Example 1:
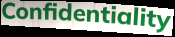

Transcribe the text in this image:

Confidentiality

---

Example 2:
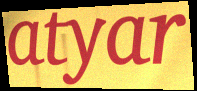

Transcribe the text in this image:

atyar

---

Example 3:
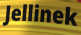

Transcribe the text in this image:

Jellinek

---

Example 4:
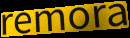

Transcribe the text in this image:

remora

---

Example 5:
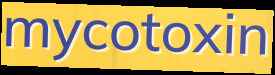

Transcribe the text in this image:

mycotoxin